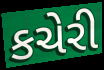
કચેરી